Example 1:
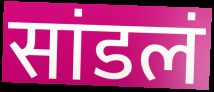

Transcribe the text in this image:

सांडलं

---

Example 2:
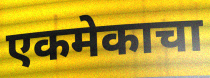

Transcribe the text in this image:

एकमेकाचा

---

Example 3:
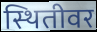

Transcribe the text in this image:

स्थितीवर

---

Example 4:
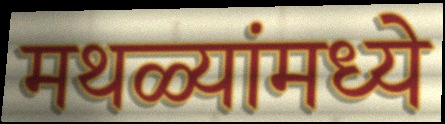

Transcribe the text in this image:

मथळ्यांमध्ये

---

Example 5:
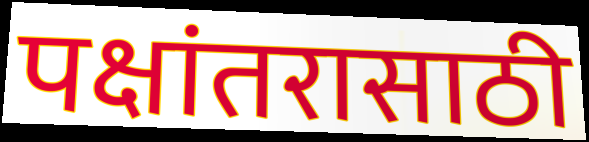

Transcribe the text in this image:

पक्षांतरासाठी